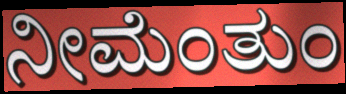
ನೀಮೆಂತುಂ